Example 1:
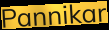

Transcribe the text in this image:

Pannikar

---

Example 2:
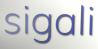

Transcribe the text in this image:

sigali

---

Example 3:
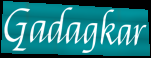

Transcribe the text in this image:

Gadagkar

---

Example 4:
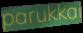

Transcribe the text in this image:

parukkai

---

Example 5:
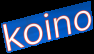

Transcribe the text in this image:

koino